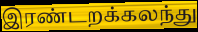
இரண்டறக்கலந்து